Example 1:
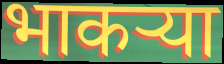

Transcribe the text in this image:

भाकऱ्या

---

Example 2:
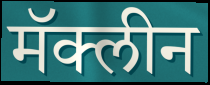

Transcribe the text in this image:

मॅक्लीन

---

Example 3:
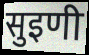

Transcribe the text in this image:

सुइणी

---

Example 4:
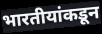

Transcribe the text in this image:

भारतीयांकडून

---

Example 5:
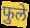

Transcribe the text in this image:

फुले